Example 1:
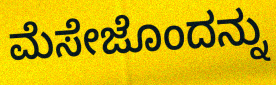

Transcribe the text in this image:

ಮೆಸೇಜೊಂದನ್ನು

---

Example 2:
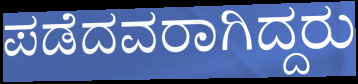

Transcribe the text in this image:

ಪಡೆದವರಾಗಿದ್ದರು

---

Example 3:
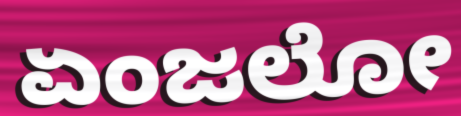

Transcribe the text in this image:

ಏಂಜಲೋ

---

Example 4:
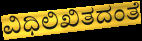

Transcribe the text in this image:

ವಿಧಿಲಿಖಿತದಂತೆ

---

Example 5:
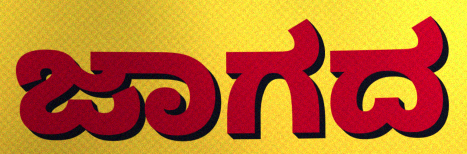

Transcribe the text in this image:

ಜಾಗದ